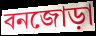
বনজোড়া